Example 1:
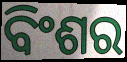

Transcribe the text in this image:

ବିଂଶର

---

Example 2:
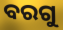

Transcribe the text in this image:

ବରଗୁ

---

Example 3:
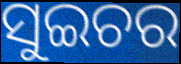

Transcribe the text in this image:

ସୁଇଚର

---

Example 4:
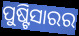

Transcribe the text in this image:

ପୁଷ୍ଟିସାରର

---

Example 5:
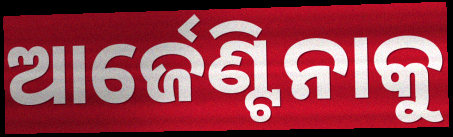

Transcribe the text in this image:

ଆର୍ଜେଣ୍ଟିନାକୁ